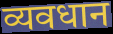
व्यवधान